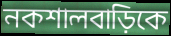
নকশালবাড়িকে